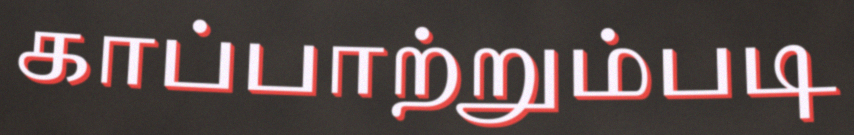
காப்பாற்றும்படி